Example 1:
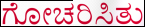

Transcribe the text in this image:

ಗೋಚರಿಸಿತು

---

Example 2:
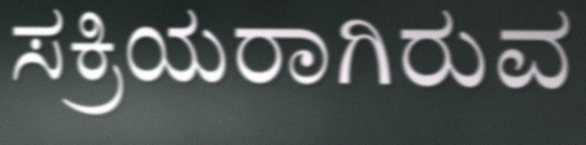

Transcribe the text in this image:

ಸಕ್ರಿಯರಾಗಿರುವ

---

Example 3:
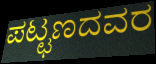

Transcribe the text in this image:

ಪಟ್ಟಣದವರ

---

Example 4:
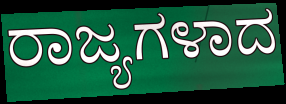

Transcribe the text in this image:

ರಾಜ್ಯಗಳಾದ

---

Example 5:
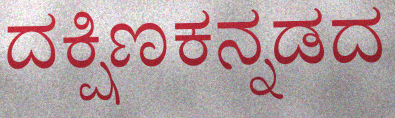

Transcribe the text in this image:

ದಕ್ಷಿಣಕನ್ನಡದ